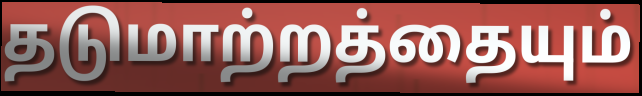
தடுமாற்றத்தையும்